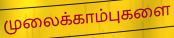
முலைக்காம்புகளை